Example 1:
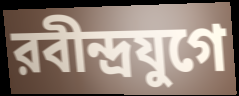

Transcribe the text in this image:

রবীন্দ্রযুগে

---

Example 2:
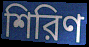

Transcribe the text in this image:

শিরিণ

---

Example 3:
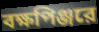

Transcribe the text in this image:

বক্ষপিঞ্জরে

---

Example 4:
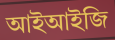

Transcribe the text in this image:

আইআইজি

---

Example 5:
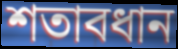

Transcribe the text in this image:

শতাবধান